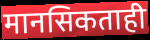
मानसिकताही